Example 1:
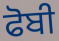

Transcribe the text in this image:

ਫੋਬੀ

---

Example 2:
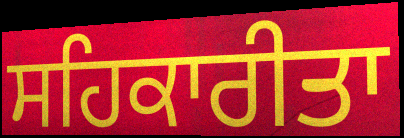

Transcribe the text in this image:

ਸਹਿਕਾਰੀਤਾ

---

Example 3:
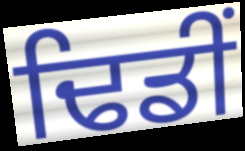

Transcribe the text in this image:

ਢਿਡੀਂ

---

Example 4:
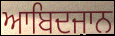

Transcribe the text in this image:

ਆਬਿਦਜਾਨ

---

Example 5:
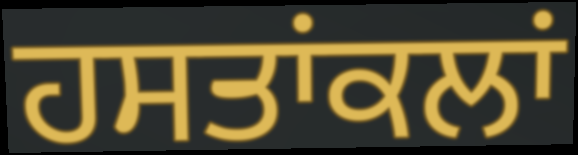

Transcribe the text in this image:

ਹਸਤਾਂਕਲਾਂ